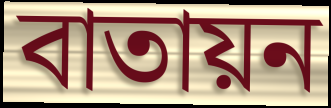
বাতায়ন